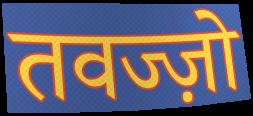
तवज्ज़ो